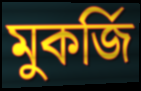
মুকর্জি